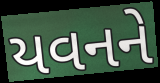
યવનને